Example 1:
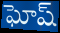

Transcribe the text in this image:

ఘోష్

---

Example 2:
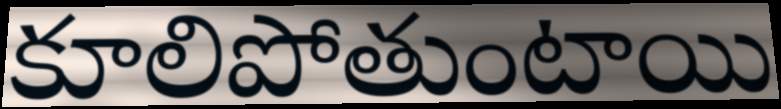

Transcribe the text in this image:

కూలిపోతుంటాయి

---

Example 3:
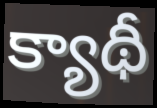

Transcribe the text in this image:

క్యాథీ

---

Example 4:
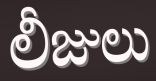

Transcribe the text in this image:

లీజులు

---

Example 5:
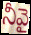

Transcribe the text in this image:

నీవై